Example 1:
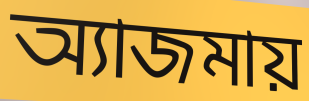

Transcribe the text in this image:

অ্যাজমায়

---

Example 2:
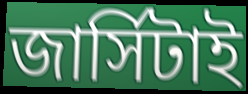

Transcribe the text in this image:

জার্সিটাই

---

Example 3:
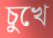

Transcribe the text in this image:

চুখে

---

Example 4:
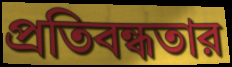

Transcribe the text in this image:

প্রতিবন্ধতার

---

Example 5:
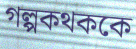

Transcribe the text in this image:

গল্পকথককে